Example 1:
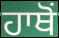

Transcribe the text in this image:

ਹਾਥੋਂ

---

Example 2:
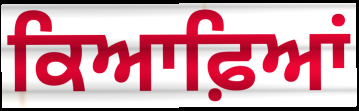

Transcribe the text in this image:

ਕਿਆਫ਼ਿਆਂ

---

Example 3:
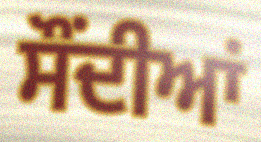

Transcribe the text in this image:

ਸੌਂਦੀਆਂ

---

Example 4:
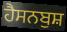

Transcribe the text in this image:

ਹੈਸਨਬੁਸ਼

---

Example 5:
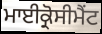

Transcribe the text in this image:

ਮਾਈਕ੍ਰੋਸੀਮੈਂਟ